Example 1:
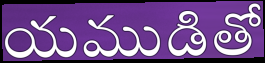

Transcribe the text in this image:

యముడితో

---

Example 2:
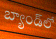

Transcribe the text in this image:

బ్యాండ్‌లో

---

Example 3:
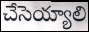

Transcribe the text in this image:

చేసెయ్యాలి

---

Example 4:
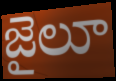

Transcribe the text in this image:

జైలూ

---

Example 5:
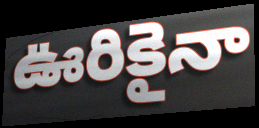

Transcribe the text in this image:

ఊరికైనా